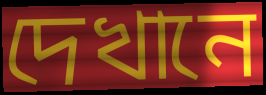
দেখানে